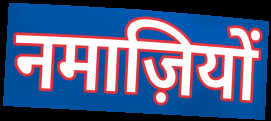
नमाज़ियों